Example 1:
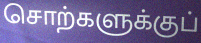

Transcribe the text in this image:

சொற்களுக்குப்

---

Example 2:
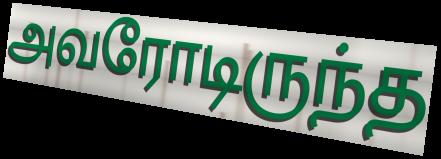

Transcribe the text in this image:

அவரோடிருந்த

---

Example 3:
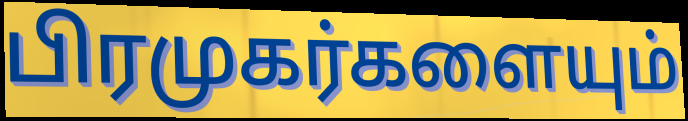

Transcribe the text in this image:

பிரமுகர்களையும்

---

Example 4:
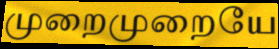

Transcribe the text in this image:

முறைமுறையே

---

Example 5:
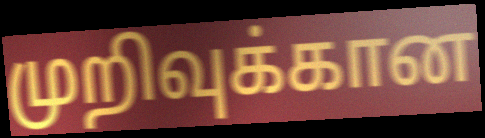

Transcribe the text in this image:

முறிவுக்கான